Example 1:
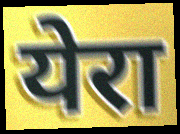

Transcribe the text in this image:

येरा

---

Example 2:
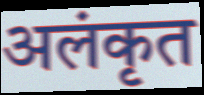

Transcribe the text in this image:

अलंकृत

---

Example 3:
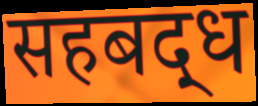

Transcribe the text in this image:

सहबद्ध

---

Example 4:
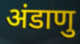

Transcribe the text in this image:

अंडाणु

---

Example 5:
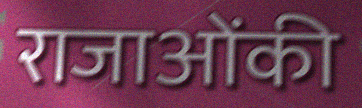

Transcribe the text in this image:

राजाओंकी